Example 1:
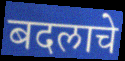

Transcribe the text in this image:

बदलाचे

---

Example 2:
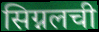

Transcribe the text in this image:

सिग्नलची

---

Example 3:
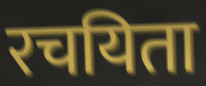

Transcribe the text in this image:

रचयिता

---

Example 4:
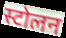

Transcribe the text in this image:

स्टोलन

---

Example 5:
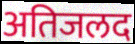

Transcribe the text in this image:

अतिजलद